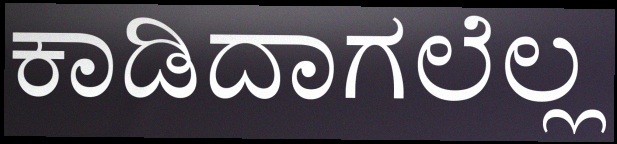
ಕಾಡಿದಾಗಲೆಲ್ಲ